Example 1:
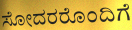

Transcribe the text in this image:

ಸೋದರರೊಂದಿಗೆ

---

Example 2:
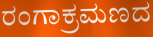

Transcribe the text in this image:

ರಂಗಾಕ್ರಮಣದ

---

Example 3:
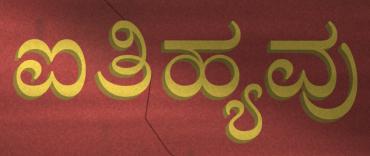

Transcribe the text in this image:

ಐತಿಹ್ಯವು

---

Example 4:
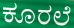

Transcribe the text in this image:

ಕೂರಲೆ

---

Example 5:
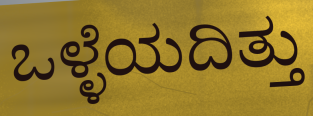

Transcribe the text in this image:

ಒಳ್ಳೆಯದಿತ್ತು